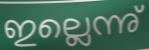
ഇല്ലെന്നു്